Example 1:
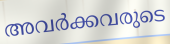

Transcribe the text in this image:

അവർക്കവരുടെ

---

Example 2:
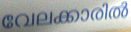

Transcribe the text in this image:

വേലക്കാരിൽ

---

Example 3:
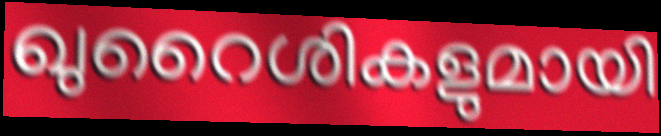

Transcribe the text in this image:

ഖുറൈശികളുമായി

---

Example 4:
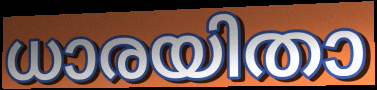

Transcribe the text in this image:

ധാരയിതാ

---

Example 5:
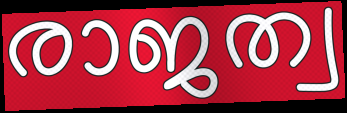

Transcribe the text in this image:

രാജത്വ